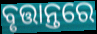
ବୃତ୍ତାନ୍ତରେ